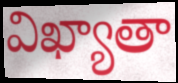
విఖ్యాతా